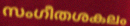
സംഗീതശകലം